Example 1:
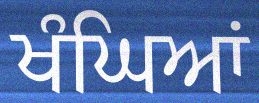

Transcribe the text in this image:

ਖੰਘਿਆਂ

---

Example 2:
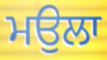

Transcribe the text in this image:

ਮਉਲਾ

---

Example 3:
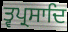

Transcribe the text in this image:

ਤ੍ਵਪ੍ਰਸਾਦਿ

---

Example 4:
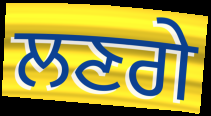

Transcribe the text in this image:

ਲਣਗੇ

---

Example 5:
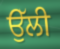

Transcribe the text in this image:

ਉੱਲੀ